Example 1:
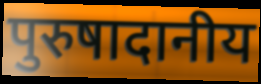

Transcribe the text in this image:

पुरुषादानीय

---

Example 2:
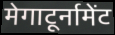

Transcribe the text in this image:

मेगाटूर्नामेंट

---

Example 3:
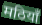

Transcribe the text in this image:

मठियाँ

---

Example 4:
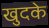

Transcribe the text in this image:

खुदके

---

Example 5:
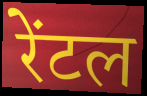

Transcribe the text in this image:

रेंटल